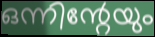
ഒന്നിന്റേയും